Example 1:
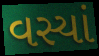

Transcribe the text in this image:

વસ્યાં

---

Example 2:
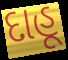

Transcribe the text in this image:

દાહૂ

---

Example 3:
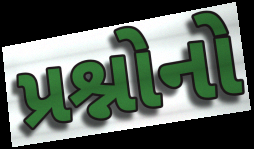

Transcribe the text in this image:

પ્રશ્નોનો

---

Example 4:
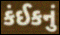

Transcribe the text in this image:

કંઈકનું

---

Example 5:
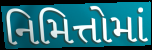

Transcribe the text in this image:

નિમિત્તોમાં